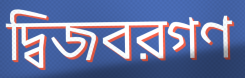
দ্বিজবরগণ